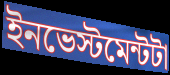
ইনভেস্টমেন্টটা